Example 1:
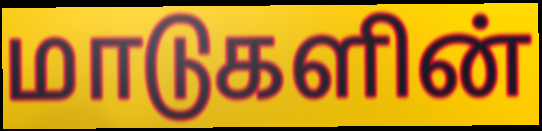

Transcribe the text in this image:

மாடுகளின்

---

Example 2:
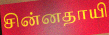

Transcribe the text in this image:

சின்னதாயி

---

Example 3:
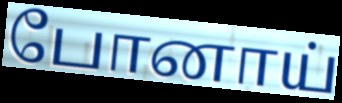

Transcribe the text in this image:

போனாய்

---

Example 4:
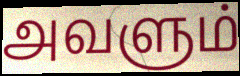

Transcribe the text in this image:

அவளும்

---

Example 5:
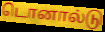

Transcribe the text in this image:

டொனால்டு